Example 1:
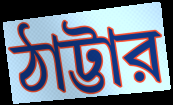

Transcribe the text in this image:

ঠাট্টার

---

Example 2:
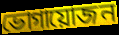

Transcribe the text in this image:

ভোগায়োজন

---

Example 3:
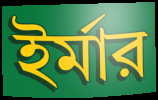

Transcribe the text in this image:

ইর্মার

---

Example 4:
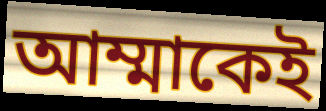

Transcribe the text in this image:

আম্মাকেই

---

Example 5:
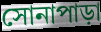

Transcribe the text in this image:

সোনাপাড়া